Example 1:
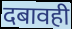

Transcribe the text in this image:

दबावही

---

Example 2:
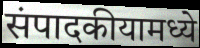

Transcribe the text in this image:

संपादकीयामध्ये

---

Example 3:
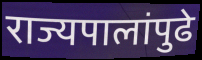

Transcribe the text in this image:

राज्यपालांपुढे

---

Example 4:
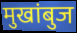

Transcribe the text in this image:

मुखांबुज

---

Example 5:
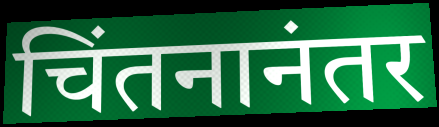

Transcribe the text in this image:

चिंतनानंतर